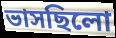
ভাসছিলো